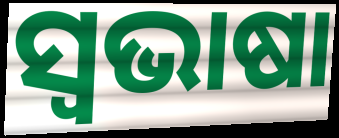
ସ୍ୱଭାଷା